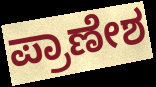
ಪ್ರಾಣೇಶ